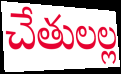
చేతులల్ల